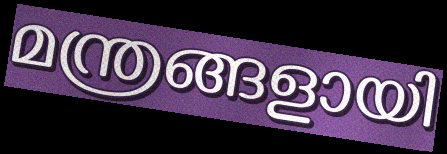
മന്ത്രങ്ങളായി